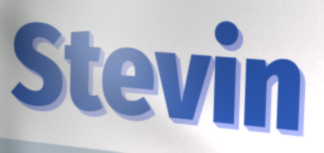
Stevin